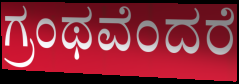
ಗ್ರಂಥವೆಂದರೆ